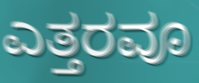
ಎತ್ತರವೂ